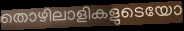
തൊഴിലാളികളുടെയോ